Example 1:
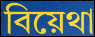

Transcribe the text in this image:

বিয়েথা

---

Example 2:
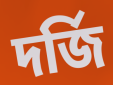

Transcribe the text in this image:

দর্জি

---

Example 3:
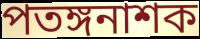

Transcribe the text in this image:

পতঙ্গনাশক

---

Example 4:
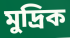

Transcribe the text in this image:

মুদ্রিক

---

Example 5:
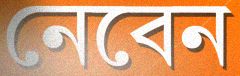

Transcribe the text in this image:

নেবেন